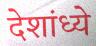
देशांध्ये